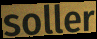
soller